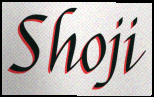
Shoji